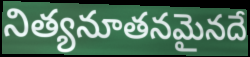
నిత్యనూతనమైనదే